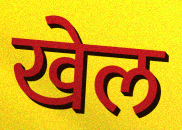
खेल